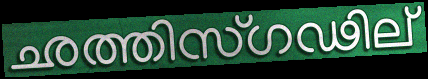
ഛത്തിസ്ഗഢില്